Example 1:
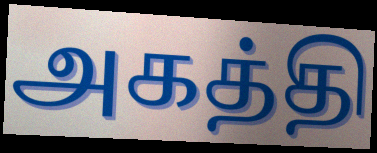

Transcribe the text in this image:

அகத்தி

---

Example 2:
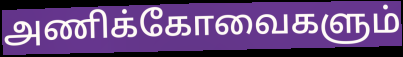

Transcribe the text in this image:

அணிக்கோவைகளும்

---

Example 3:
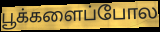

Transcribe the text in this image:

பூக்களைப்போல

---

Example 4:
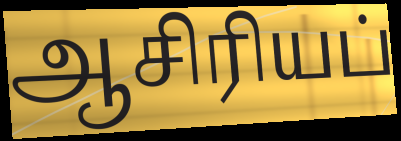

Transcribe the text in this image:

ஆசிரியப்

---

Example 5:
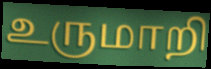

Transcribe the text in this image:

உருமாறி